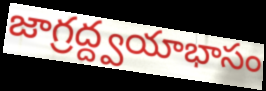
జాగ్రద్ద్వయాభాసం